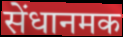
सेंधानमक